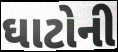
ઘાટોની